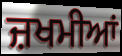
ਜ਼ਖਮੀਆਂ